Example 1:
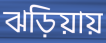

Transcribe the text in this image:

ঝড়িয়ায়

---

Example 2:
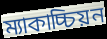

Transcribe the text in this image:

ম্যাকাচ্চিয়ন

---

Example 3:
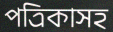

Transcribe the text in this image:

পত্রিকাসহ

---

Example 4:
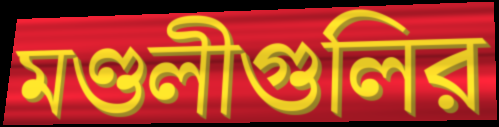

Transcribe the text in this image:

মণ্ডলীগুলির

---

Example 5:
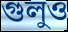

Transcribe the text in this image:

গুলুও